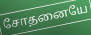
சோதனையே